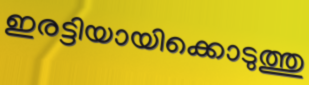
ഇരട്ടിയായിക്കൊടുത്തു